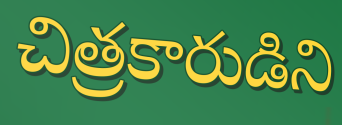
చిత్రకారుడిని